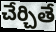
చేర్చితే